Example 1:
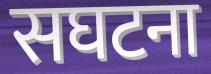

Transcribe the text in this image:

सघटना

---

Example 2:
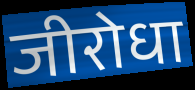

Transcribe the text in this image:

जीरोधा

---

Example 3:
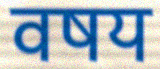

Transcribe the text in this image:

वषय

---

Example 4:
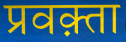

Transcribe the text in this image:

प्रवक़्ता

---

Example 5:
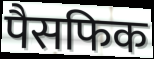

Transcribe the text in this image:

पैसफिक